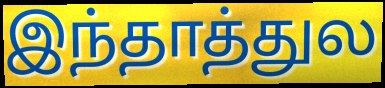
இந்தாத்துல